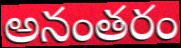
అనంతరం